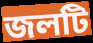
জলটি